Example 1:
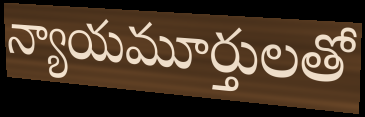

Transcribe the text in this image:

న్యాయమూర్తులతో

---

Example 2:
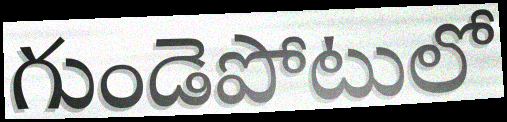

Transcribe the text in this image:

గుండెపోటులో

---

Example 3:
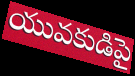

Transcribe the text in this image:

యువకుడిపై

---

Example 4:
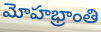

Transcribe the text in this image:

మోహభ్రాంతి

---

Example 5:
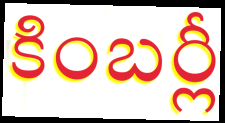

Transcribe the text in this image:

కింబర్లీ